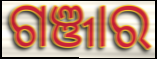
ଗଞ୍ଜାର